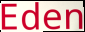
Eden